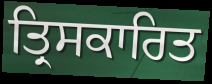
ਤ੍ਰਿਸਕਾਰਿਤ